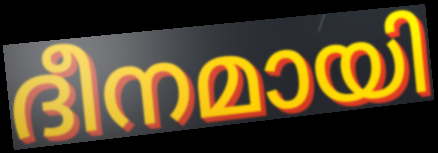
ദീനമായി